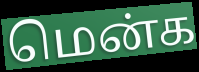
மென்க